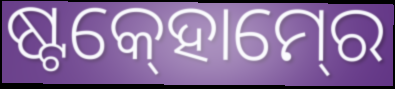
ଷ୍ଟକ୍‍ହୋମ୍‍ରେ